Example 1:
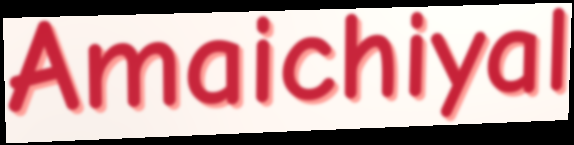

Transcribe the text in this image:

Amaichiyal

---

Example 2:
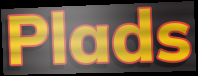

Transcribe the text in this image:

Plads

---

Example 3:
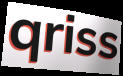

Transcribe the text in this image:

qriss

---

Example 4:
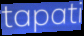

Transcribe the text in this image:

tapati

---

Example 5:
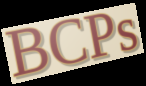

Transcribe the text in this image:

BCPs